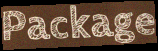
Package